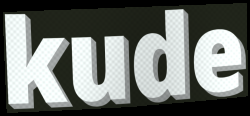
kude